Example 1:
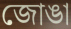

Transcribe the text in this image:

জোঙা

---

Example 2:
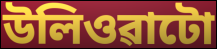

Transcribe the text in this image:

উলিওৱাটো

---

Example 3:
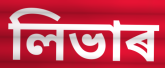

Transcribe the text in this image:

লিভাৰ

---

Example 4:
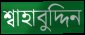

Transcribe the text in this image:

শ্বাহাবুদ্দিন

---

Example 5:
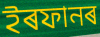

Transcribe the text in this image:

ইৰফানৰ